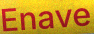
Enave